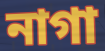
নাগা